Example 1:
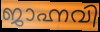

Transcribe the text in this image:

ജാഹ്നവി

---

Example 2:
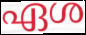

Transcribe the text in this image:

ഏശ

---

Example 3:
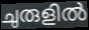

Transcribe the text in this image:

ചുരുളിൽ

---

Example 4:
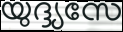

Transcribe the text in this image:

യുദ്ദ്യസേ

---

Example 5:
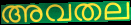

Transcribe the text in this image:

അവതല